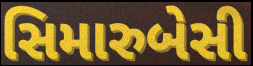
સિમારુબેસી